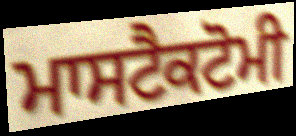
ਮਾਸਟੈਕਟੋਮੀ